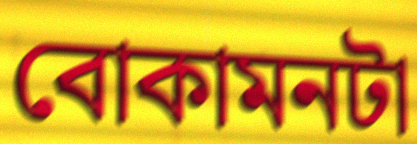
বোকামনটা